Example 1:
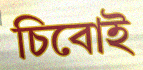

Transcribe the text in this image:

চিবোই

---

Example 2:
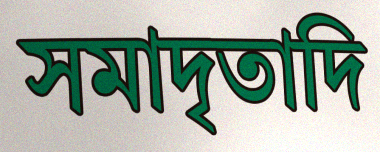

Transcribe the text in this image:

সমাদৃতাদি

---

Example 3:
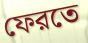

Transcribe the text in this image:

ফেরতে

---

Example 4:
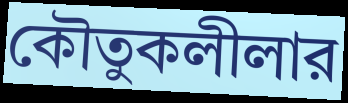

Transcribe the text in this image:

কৌতুকলীলার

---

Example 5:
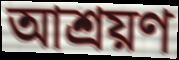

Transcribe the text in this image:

আশ্রয়ণ